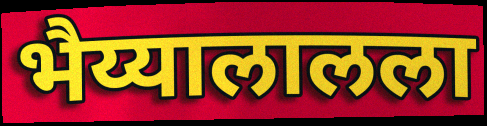
भैय्यालालला